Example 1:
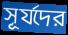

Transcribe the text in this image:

সূর্যদের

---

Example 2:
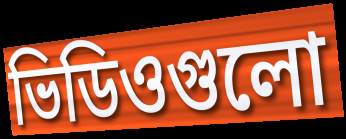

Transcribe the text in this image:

ভিডিওগুলো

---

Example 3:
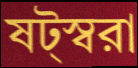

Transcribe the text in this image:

ষট্স্বরা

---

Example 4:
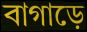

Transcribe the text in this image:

বাগাড়ে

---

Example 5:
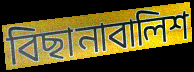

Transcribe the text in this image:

বিছানাবালিশ